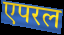
एपरल